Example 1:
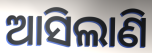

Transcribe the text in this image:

ଆସିଲାଣି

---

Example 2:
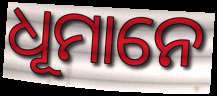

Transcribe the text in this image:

ଧୂମାନେ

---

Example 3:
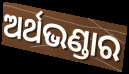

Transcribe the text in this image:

ଅର୍ଥଭଣ୍ଡାର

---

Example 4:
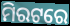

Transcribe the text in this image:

ମିରଟରେ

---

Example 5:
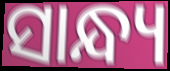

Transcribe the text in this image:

ସାନ୍ଧ୍ୟ